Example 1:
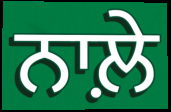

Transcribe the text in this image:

ਨਾਲ਼ੇ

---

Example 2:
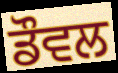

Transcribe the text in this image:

ਡੌਵਲ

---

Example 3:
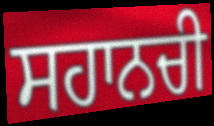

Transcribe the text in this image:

ਸਹਾਨਚੀ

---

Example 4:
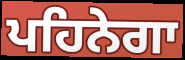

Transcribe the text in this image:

ਪਹਿਨੇਗਾ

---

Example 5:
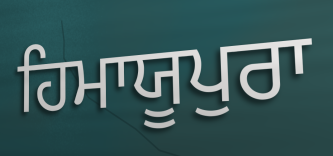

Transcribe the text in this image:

ਹਿਮਾਯੂਪੁਰਾ